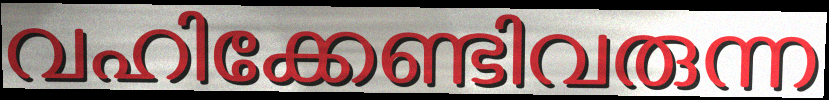
വഹിക്കേണ്ടിവരുന്ന